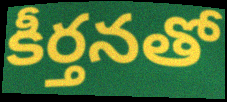
కీర్తనతో